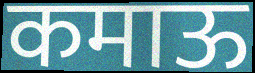
कमाऊ